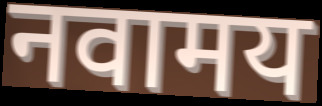
नवामय